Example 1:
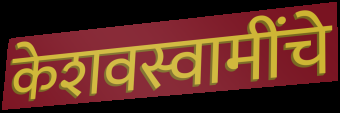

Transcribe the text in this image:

केशवस्वामींचे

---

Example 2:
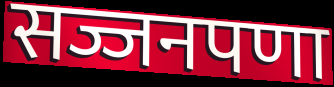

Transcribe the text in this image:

सज्जनपणा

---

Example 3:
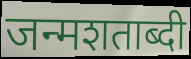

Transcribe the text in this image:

जन्मशताब्दी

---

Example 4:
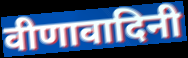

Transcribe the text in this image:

वीणावादिनी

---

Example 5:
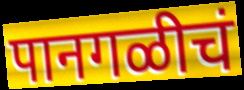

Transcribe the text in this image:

पानगळीचं